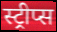
स्ट्रीप्स